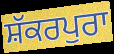
ਸ਼ੱਕਰਪੁਰਾ